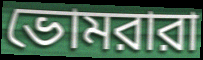
ভোমরারা